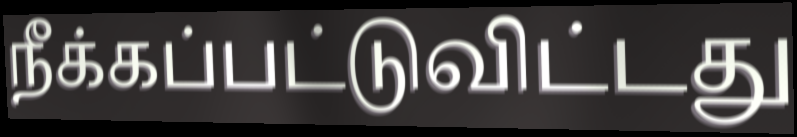
நீக்கப்பட்டுவிட்டது